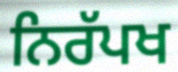
ਨਿਰੱਪਖ